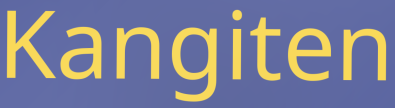
Kangiten